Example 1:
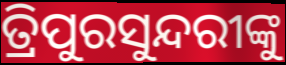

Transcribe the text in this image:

ତ୍ରିପୁରସୁନ୍ଦରୀଙ୍କୁ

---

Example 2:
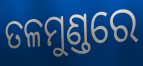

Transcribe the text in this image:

ତଳମୁଣ୍ଡରେ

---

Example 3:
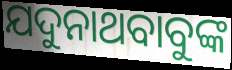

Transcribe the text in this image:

ଯଦୁନାଥବାବୁଙ୍କ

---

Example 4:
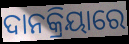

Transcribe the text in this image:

ଦାନକ୍ରିୟାରେ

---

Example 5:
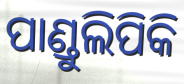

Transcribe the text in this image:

ପାଣ୍ଡୁଲିପିକି